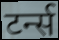
टर्न्स